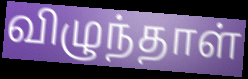
விழுந்தாள்